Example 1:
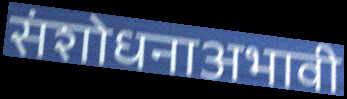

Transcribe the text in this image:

संशोधनाअभावी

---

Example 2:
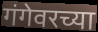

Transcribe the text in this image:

गंगेवरच्या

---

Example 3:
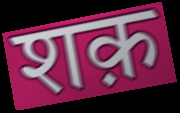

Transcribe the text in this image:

शक़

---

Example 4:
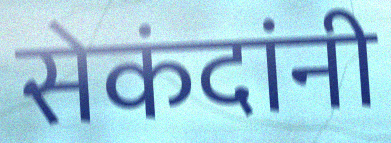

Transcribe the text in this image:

सेकंदांनी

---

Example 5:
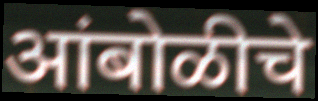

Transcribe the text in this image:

आंबोळीचे